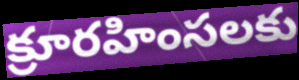
క్రూరహింసలకు